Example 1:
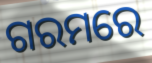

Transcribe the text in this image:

ଗରମରେ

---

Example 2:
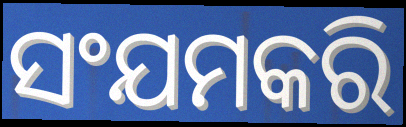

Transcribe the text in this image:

ସଂଯମକରି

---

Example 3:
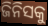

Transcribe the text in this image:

ଜିନିସକୁ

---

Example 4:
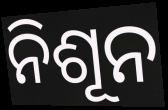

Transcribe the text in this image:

ନିଶୂନ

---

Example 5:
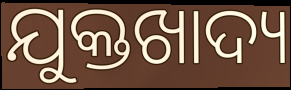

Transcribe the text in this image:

ଯୁକ୍ତଖାଦ୍ୟ